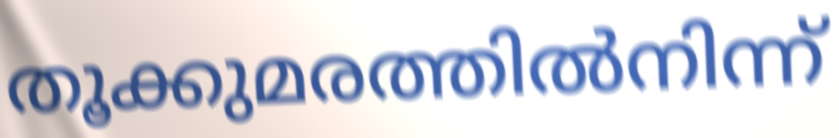
തൂക്കുമരത്തിൽനിന്ന്